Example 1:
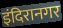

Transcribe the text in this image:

इंदिरानगर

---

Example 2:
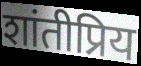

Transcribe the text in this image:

शांतीप्रिय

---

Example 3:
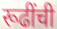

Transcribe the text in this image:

रूढींची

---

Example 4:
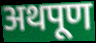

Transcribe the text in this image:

अथपूण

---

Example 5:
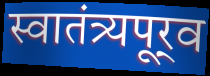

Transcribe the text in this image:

स्वातंत्र्यपूर्व